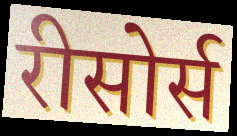
रीसोर्स